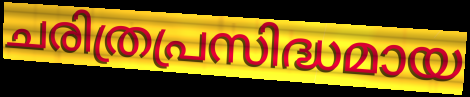
ചരിത്രപ്രസിദ്ധമായ